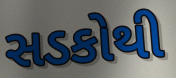
સડકોથી